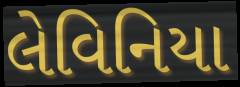
લેવિનિયા